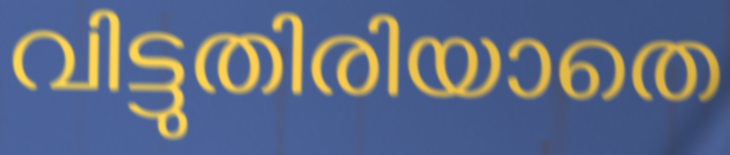
വിട്ടുതിരിയാതെ